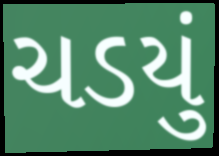
ચડયું